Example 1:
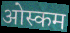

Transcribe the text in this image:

ओस्कम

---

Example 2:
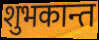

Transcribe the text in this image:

शुभकान्त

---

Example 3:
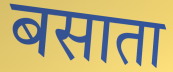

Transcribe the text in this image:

बसाता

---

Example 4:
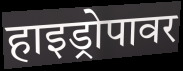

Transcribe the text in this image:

हाइड्रोपावर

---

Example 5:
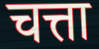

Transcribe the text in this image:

चत्ता